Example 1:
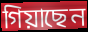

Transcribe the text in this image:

গিয়াছেন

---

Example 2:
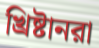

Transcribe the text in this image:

খ্রিষ্টানরা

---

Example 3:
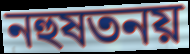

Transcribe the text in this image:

নহুষতনয়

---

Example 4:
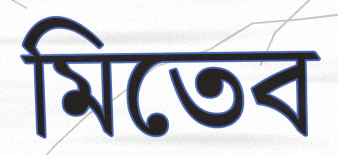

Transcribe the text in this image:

মিতেব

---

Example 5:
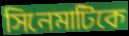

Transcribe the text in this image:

সিনেমাটিকে